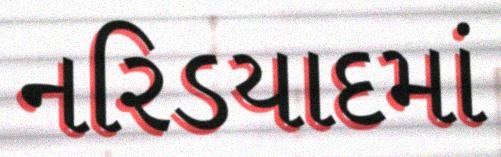
નરિડયાદમાં